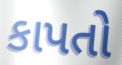
કાપતો